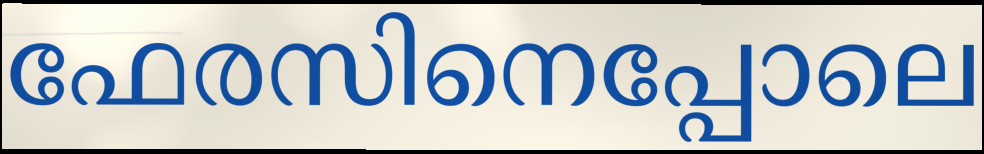
ഫേരസിനെപ്പോലെ